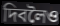
দিবলৈও